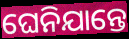
ଘେନିଯାନ୍ତେ